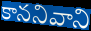
కాననివాని